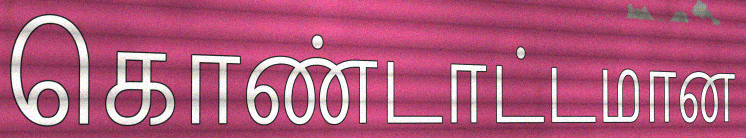
கொண்டாட்டமான